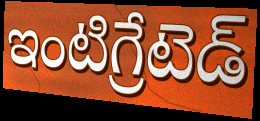
ఇంటిగ్రేటెడ్